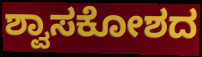
ಶ್ವಾಸಕೋಶದ